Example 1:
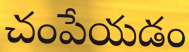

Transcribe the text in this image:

చంపేయడం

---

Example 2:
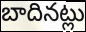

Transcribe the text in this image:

బాదినట్లు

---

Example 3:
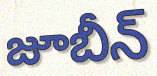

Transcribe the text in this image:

జూబీన్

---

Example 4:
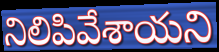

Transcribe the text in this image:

నిలిపివేశాయని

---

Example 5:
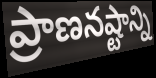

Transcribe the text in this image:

ప్రాణనష్టాన్ని